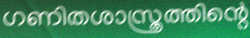
ഗണിതശാസ്ത്രത്തിന്റെ